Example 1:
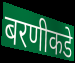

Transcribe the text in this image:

बरणीकडे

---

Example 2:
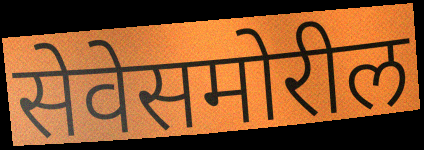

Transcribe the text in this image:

सेवेसमोरील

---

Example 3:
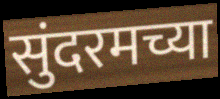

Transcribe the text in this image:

सुंदरमच्या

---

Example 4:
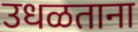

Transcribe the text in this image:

उधळताना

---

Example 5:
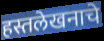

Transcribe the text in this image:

हस्तलेखनाचे